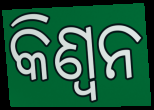
କିଣ୍ୱନ